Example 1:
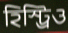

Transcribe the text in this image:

হিস্ট্রিও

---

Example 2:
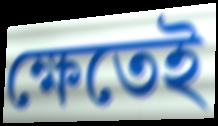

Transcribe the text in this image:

ক্ষেতেই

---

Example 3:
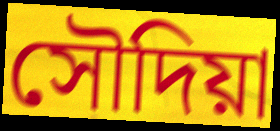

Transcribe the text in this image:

সৌদিয়া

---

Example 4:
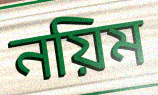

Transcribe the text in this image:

নয়িম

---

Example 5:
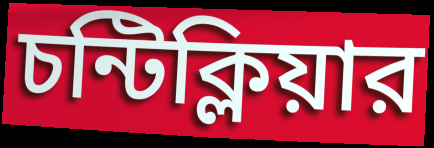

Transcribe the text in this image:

চন্টিক্লিয়ার